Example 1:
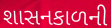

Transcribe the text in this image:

શાસનકાળની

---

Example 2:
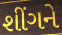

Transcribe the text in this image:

શીંગને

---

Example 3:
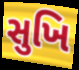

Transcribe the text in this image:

સુખિ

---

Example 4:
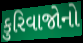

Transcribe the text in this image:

કુરિવાજોનો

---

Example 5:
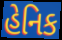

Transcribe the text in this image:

હેનિક